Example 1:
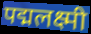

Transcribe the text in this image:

पद्मलक्ष्मी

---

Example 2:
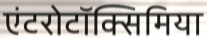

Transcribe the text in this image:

एंटरोटॉक्सिमिया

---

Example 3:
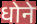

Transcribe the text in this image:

धोने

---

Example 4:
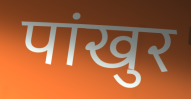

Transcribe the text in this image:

पांखुर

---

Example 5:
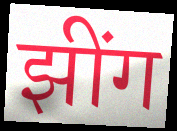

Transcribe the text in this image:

झींग